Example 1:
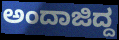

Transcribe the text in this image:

ಅಂದಾಜಿದ್ದ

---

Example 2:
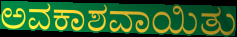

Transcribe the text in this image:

ಅವಕಾಶವಾಯಿತು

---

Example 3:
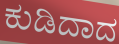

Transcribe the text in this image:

ಕುಡಿದಾದ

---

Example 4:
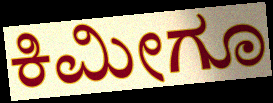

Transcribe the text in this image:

ಕಿಮೀಗೂ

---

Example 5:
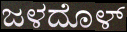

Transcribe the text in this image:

ಜಳದೊಳ್